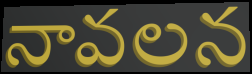
నావలన